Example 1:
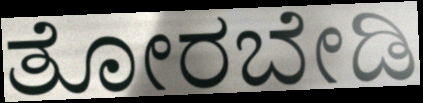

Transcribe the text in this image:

ತೋರಬೇಡಿ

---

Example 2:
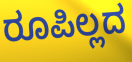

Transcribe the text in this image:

ರೂಪಿಲ್ಲದ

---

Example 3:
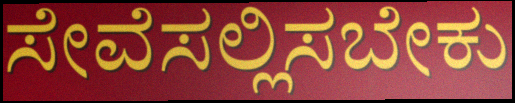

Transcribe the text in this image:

ಸೇವೆಸಲ್ಲಿಸಬೇಕು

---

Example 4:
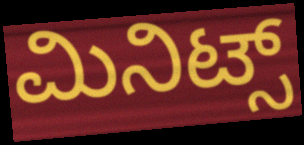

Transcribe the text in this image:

ಮಿನಿಟ್ಸ್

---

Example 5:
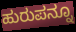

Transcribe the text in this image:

ಹುರುಪನ್ನೂ